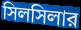
সিলসিলার